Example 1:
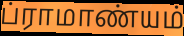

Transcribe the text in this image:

ப்ராமாண்யம்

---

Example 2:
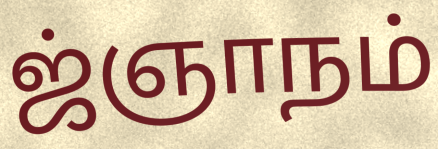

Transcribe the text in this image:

ஜ்ஞாநம்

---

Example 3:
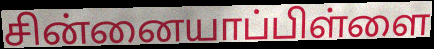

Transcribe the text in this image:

சின்னையாப்பிள்ளை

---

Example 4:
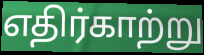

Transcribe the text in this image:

எதிர்காற்று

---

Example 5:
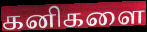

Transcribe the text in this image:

கனிகளை